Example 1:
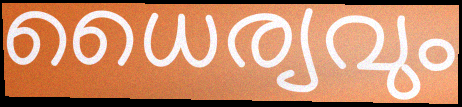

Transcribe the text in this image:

ധൈര്യവും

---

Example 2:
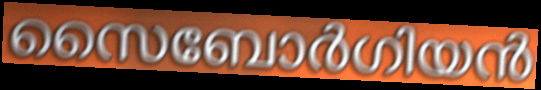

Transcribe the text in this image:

സൈബോർഗിയൻ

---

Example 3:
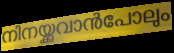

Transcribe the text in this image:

നിനയ്ക്കുവാൻപോലും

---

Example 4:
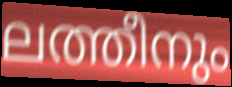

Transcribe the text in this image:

ലത്തീനും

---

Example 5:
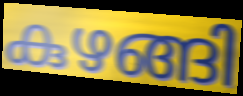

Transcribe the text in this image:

കുഴങ്ങി